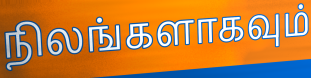
நிலங்களாகவும்